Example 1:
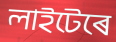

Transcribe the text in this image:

লাইটেৰে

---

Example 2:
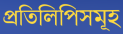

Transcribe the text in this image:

প্ৰতিলিপিসমূহ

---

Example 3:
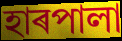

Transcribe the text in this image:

হাৰপালা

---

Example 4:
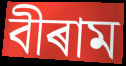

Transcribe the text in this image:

বীৰাম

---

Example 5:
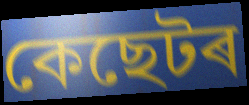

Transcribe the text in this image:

কেছেটৰ